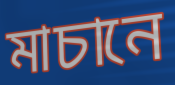
মাচানে